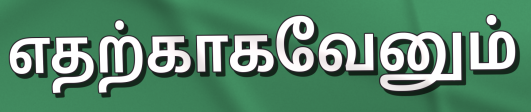
எதற்காகவேனும்